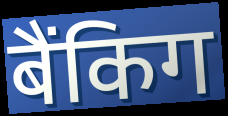
बैंकिग